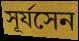
সূর্যসেন